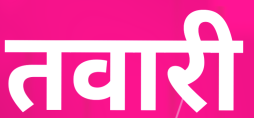
तवारी